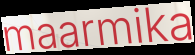
maarmika